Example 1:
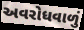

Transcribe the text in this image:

અવરોધવાળું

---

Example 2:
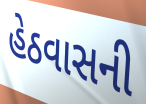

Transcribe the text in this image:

હેઠવાસની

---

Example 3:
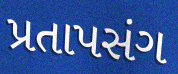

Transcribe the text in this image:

પ્રતાપસંગ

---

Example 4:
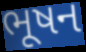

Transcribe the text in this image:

ભૂષન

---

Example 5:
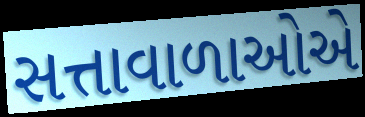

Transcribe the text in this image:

સત્તાવાળાઓએ